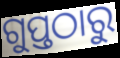
ଗୁପ୍ତଠାରୁ